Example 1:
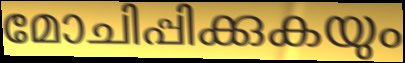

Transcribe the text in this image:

മോചിപ്പിക്കുകയും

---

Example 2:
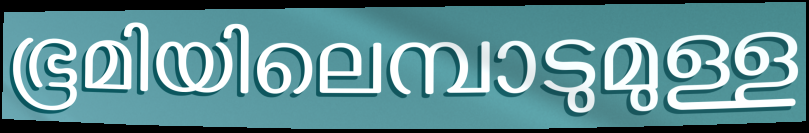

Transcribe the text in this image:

ഭൂമിയിലെമ്പാടുമുള്ള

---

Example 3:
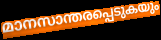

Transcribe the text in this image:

മാനസാന്തരപ്പെടുകയും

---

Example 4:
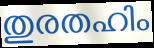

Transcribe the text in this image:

തുരതഹിം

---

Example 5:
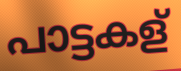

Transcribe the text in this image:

പാട്ടകള്